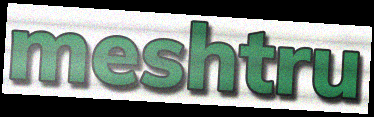
meshtru